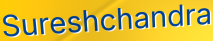
Sureshchandra